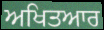
ਅਖਿਤਆਰ